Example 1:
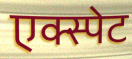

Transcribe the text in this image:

एक्स्पेट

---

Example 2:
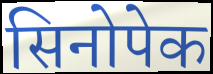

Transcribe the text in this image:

सिनोपेक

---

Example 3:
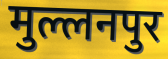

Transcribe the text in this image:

मुल्लनपुर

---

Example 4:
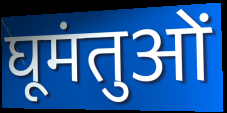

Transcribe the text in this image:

घूमंतुओं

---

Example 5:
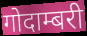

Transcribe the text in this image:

गोदाम्बरी